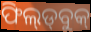
ଫିଲ୍‍ଡ୍‍ବୁକ୍